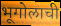
भूगोलाची